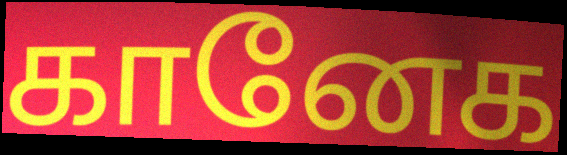
கானேக